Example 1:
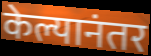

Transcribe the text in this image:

केल्यानंतर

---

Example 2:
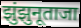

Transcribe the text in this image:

झुंझुनूताजा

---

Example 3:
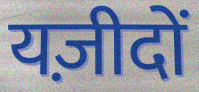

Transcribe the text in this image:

यज़ीदों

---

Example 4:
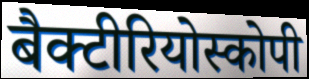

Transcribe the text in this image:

बैक्टीरियोस्कोपी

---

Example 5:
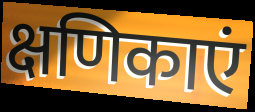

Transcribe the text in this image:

क्षणिकाएं